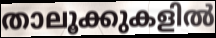
താലൂക്കുകളിൽ